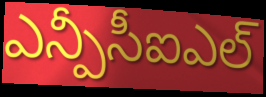
ఎన్పీసీఐఎల్